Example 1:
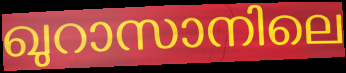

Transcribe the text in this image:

ഖുറാസാനിലെ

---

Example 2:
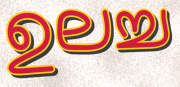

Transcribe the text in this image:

ഉലച്ച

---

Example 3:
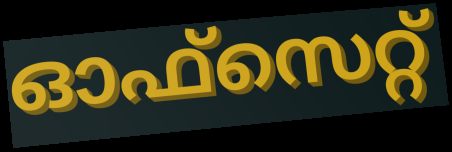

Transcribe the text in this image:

ഓഫ്സെറ്റ്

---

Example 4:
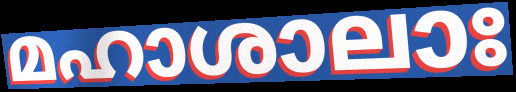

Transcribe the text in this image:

മഹാശാലാഃ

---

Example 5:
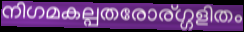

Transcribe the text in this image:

നിഗമകല്പതരോര്ഗ്ഗളിതം